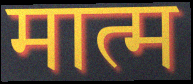
मात्म